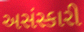
અસંસ્કારી